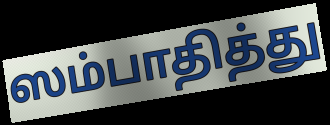
ஸம்பாதித்து